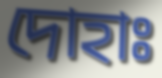
দোহাঃ